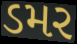
ડમર